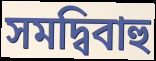
সমদ্বিবাহু